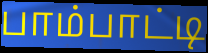
பாம்பாட்டி